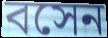
বসেন